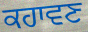
ਕਹਾਵਣ